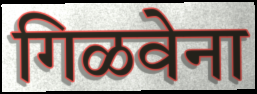
गिळवेना